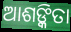
ଆଶଙ୍କିତା